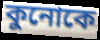
কুনোকে